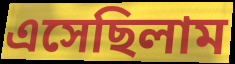
এসেছিলাম